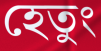
হেতুং